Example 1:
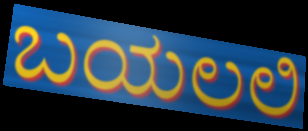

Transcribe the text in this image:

ಬಯಲಲಿ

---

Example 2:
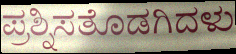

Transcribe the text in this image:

ಪ್ರಶ್ನಿಸತೊಡಗಿದಳು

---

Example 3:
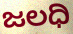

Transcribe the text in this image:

ಜಲಧಿ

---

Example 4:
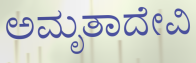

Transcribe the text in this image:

ಅಮೃತಾದೇವಿ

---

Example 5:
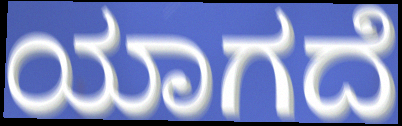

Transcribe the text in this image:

ಯಾಗದೆ